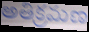
అతిక్రమణ